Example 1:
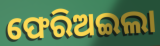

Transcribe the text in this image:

ଫେରିଅଇଲା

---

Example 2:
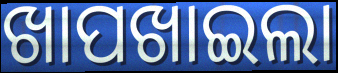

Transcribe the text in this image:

ଖାପଖାଇଲା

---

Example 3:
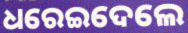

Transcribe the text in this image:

ଧରେଇଦେଲେ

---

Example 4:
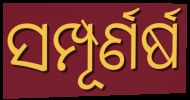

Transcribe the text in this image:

ସମ୍ପୂର୍ଣର୍ଷ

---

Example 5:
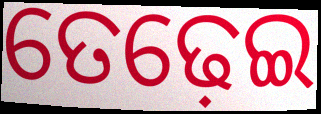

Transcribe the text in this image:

ତେଢ଼େଇ